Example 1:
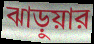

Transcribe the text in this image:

ঝাড়ুয়ার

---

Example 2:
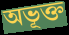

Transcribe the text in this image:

অভূক্ত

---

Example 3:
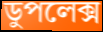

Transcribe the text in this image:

ডুপলেক্স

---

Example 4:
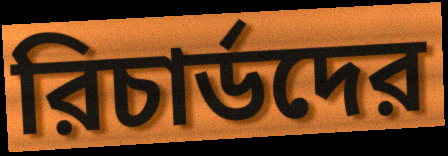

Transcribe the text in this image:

রিচার্ডদের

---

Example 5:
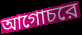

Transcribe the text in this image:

আগোচরে